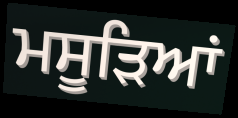
ਮਸੂੜਿਆਂ